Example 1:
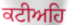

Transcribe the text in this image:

ਕਟੀਅਹਿ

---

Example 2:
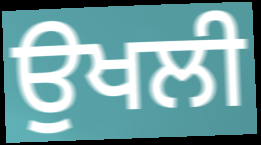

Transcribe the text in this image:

ਉਖਲੀ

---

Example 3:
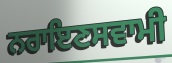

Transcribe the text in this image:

ਨਰਾਇਣਸਵਾਮੀ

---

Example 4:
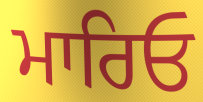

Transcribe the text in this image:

ਮਾਰਿਓ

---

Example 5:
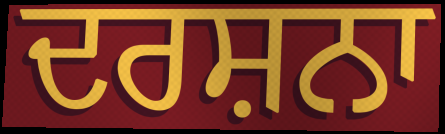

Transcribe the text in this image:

ਦਰਸ਼ਨਾ